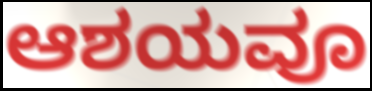
ಆಶಯವೂ